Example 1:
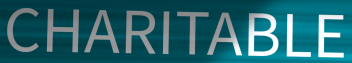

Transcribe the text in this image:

CHARITABLE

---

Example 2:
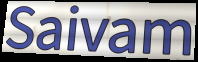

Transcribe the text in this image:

Saivam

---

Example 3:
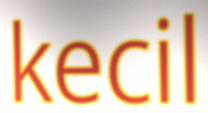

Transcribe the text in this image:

kecil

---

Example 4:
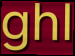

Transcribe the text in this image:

ghl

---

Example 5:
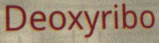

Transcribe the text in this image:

Deoxyribo